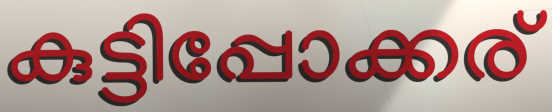
കുട്ടിപ്പോക്കര്